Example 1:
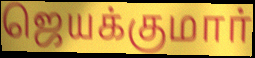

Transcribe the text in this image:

ஜெயக்குமார்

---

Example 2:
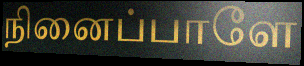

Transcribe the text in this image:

நினைப்பாளே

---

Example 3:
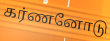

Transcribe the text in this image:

கர்ணனோடு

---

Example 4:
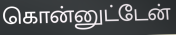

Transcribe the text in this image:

கொன்னுட்டேன்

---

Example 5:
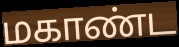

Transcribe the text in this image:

மகாண்ட